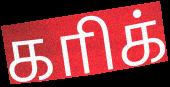
கரிக்